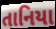
તાનિયા